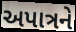
અપાત્રને